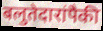
बलुतेदारांपैकी